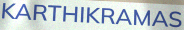
KARTHIKRAMAS